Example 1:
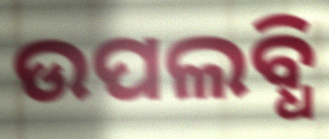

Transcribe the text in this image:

ଉପଲବ୍ଧି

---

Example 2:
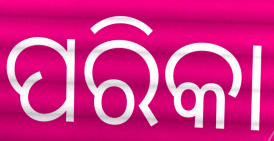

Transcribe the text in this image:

ପରିକା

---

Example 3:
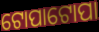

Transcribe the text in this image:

ଟୋପାଟୋପା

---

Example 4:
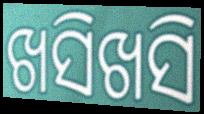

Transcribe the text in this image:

ଖସିଖସି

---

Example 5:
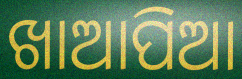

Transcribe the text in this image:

ଖାଆପିଆ